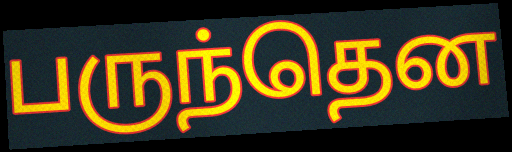
பருந்தென